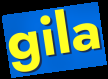
gila